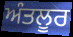
ਅੰਤਲੂਰ